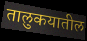
तालुकयातील